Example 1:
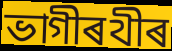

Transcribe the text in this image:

ভাগীৰথীৰ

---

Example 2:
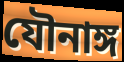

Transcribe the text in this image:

যৌনাঙ্গ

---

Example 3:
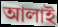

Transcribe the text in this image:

আলাই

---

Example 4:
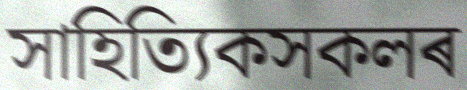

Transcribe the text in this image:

সাহিত্যিকসকলৰ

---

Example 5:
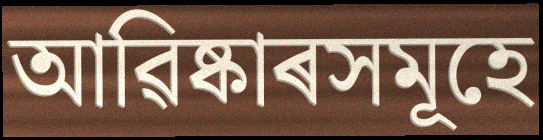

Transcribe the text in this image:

আৱিষ্কাৰসমূহে